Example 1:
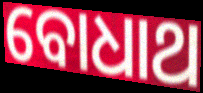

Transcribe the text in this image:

ବୋଧାଥ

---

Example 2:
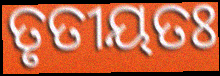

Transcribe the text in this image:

ତୃତୀୟତଃ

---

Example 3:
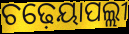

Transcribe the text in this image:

ଚଢ଼େୟାପଲ୍ଲୀ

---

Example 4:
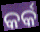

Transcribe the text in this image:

କର୍କ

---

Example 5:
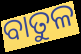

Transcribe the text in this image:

ବାତୁଳ